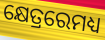
କ୍ଷେତ୍ରରେମଧ୍ୟ